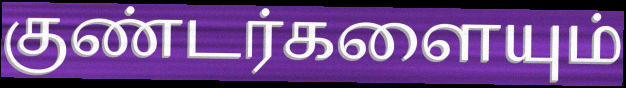
குண்டர்களையும்